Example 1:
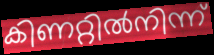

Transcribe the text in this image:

കിണറ്റിൽനിന്ന്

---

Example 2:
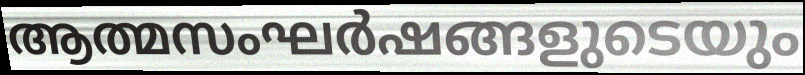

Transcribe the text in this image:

ആത്മസംഘർഷങ്ങളുടെയും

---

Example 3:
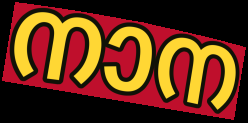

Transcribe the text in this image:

നാന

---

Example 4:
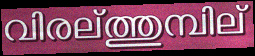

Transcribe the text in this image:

വിരല്ത്തുമ്പില്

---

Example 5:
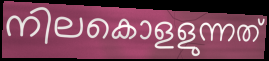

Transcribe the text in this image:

നിലകൊളളുന്നത്